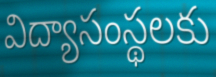
విద్యాసంస్థలకు